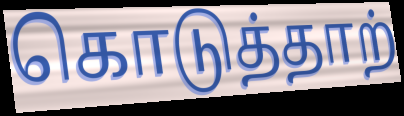
கொடுத்தாற்